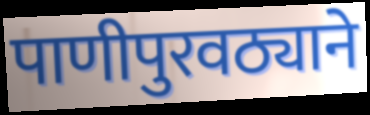
पाणीपुरवठ्याने